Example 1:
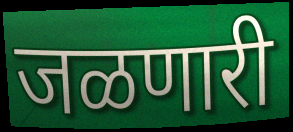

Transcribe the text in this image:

जळणारी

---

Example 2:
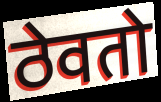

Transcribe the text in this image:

ठेवतो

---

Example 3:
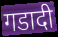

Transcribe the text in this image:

गडादी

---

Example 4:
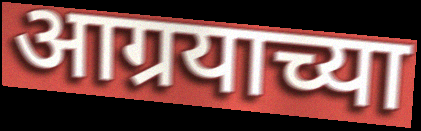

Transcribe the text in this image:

आग्रयाच्या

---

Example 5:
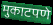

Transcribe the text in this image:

मुकाटपणे